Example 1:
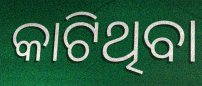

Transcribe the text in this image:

କାଟିଥିବା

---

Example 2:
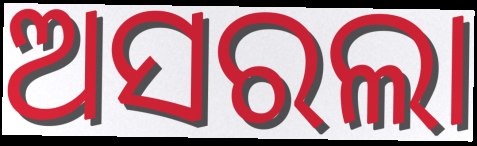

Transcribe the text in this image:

ଅସରଲା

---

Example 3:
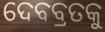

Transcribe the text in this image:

ଦେବବ୍ରତକୁ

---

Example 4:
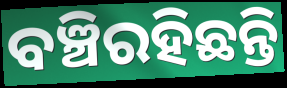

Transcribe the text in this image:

ବଞ୍ଚିରହିଛନ୍ତି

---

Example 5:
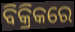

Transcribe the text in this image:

ବିକ୍ରିକରେ